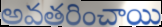
అవతరించాయి